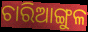
ଚାରିଆଙ୍ଗୁଳ